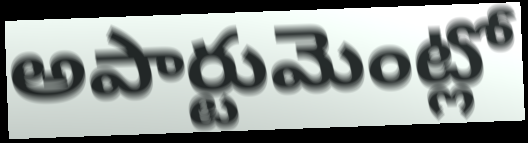
అపార్టుమెంట్లో